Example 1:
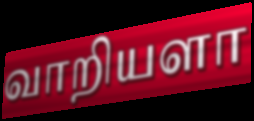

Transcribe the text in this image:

வாறியளா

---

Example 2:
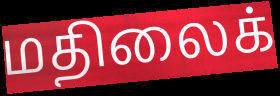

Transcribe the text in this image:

மதிலைக்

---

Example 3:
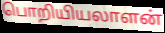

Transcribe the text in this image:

பொறியியலாளன்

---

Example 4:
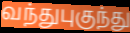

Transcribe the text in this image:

வந்துபுகுந்து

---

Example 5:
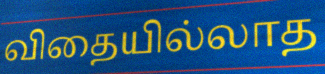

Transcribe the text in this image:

விதையில்லாத